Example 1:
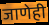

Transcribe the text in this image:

जाणेही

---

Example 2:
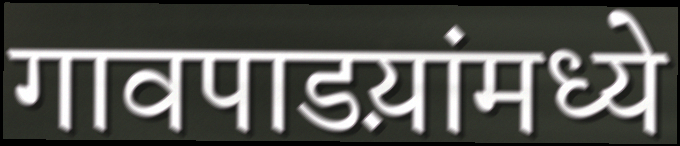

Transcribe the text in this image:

गावपाडय़ांमध्ये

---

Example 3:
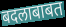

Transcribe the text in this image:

बदलाबाबत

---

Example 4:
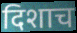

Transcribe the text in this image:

दिशाच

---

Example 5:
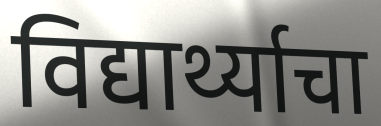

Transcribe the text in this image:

विद्यार्थ्याचा